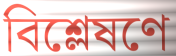
বিশ্লেষণে